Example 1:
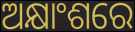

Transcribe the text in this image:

ଅକ୍ଷାଂଶରେ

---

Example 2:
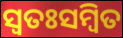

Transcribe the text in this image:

ସ୍ୱତଃସମ୍ବିତ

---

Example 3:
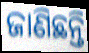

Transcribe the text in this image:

ଜାଣିଛନ୍ତି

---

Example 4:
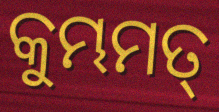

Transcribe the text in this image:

କୁମ୍ଭମତ୍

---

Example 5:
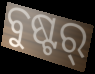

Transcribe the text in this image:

ବୁଷ୍ଟର୍